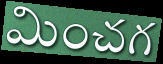
మించగ